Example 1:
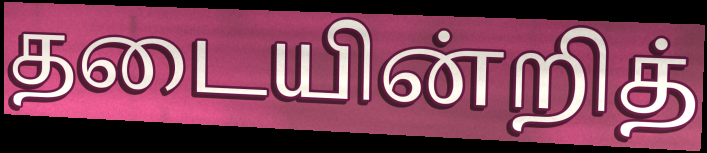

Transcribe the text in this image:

தடையின்றித்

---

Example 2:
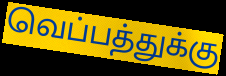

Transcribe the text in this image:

வெப்பத்துக்கு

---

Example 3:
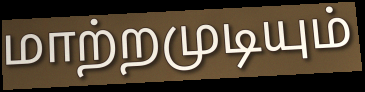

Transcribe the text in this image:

மாற்றமுடியும்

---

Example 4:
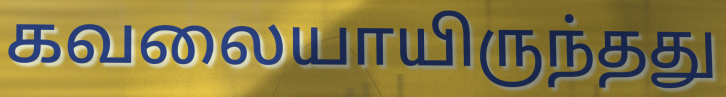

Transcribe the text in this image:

கவலையாயிருந்தது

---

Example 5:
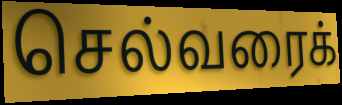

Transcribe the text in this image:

செல்வரைக்